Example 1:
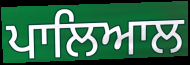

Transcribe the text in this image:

ਪਾਲਿਆਲ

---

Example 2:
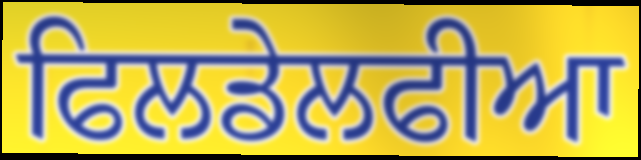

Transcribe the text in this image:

ਫਿਲਡੇਲਫੀਆ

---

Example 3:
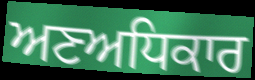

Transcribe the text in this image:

ਅਣਅਧਿਕਾਰ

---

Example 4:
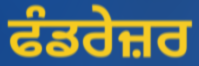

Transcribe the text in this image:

ਫੰਡਰੇਜ਼ਰ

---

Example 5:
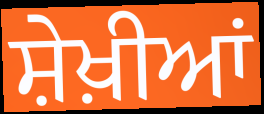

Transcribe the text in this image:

ਸ਼ੇਖ਼ੀਆਂ